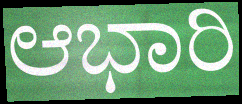
ಆಭಾರಿ